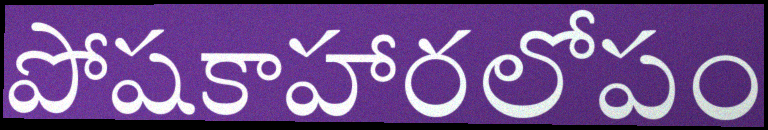
పోషకాహారలోపం